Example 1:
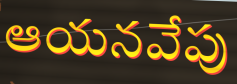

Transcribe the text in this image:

ఆయనవేపు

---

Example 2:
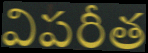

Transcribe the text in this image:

విపరీత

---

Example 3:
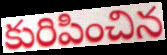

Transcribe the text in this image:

కురిపించిన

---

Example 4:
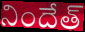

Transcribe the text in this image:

నిందేత్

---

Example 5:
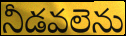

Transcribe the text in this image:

నీడవలెను